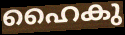
ഹൈകു